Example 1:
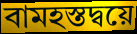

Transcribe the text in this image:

বামহস্তদ্বয়ে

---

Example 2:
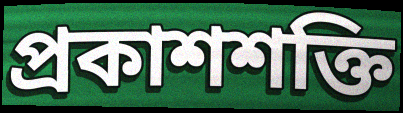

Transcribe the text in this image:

প্রকাশশক্তি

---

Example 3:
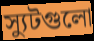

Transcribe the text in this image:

স্যুটগুলো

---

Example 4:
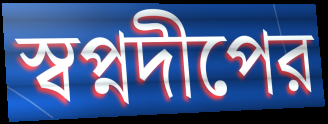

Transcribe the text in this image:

স্বপ্নদীপের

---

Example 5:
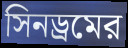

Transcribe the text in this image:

সিনড্রমের